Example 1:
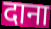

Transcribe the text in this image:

दाना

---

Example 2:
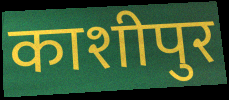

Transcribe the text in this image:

काशीपुर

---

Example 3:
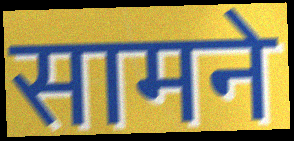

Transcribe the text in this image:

सामने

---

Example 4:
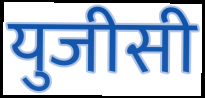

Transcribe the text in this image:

युजीसी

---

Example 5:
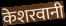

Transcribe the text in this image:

केशरवानी